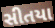
સીતયા